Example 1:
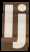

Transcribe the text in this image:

lj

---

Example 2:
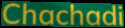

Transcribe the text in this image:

Chachadi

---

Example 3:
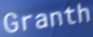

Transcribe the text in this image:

Granth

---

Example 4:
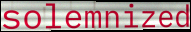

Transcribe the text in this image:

solemnized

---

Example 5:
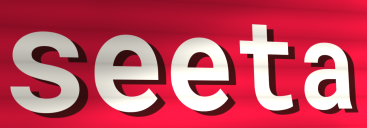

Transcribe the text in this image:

seeta